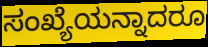
ಸಂಖ್ಯೆಯನ್ನಾದರೂ